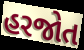
હરજોત